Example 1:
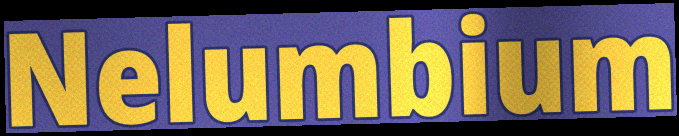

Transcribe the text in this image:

Nelumbium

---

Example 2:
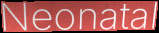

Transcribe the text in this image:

Neonatal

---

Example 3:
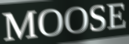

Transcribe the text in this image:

MOOSE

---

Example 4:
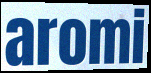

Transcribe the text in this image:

aromi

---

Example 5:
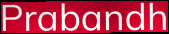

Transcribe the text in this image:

Prabandh